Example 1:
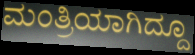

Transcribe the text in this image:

ಮಂತ್ರಿಯಾಗಿದ್ದೂ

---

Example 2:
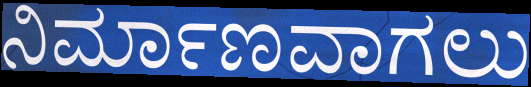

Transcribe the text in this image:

ನಿರ್ಮಾಣವಾಗಲು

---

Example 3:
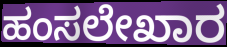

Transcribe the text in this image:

ಹಂಸಲೇಖಾರ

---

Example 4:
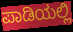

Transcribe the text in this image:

ಪಾಡಿಯಲ್ಲಿ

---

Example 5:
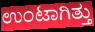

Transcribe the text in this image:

ಉಂಟಾಗಿತ್ತು